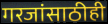
गरजांसाठीही